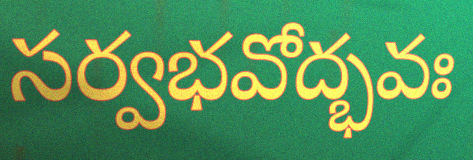
సర్వభవోద్భవః